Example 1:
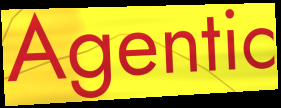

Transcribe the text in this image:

Agentic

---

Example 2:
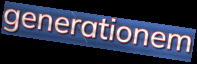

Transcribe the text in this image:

generationem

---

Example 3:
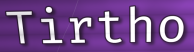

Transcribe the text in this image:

Tirtho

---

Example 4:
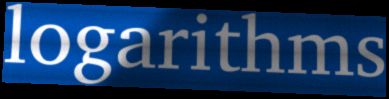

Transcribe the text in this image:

logarithms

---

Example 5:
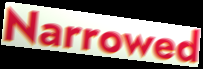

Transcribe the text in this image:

Narrowed